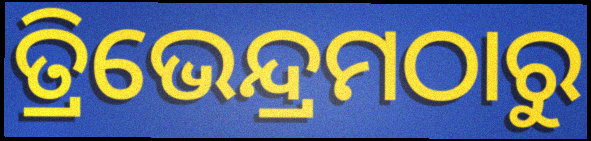
ତ୍ରିଭେନ୍ଦ୍ରମଠାରୁ